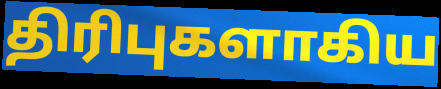
திரிபுகளாகிய